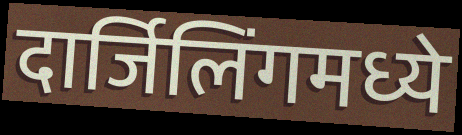
दार्जिलिंगमध्ये